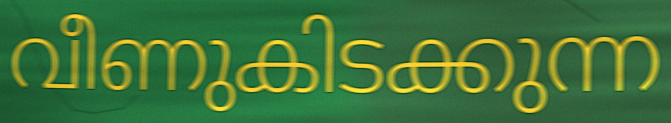
വീണുകിടക്കുന്ന